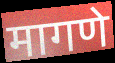
मागणे